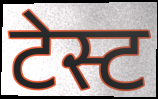
टेस्‍ट